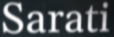
Sarati